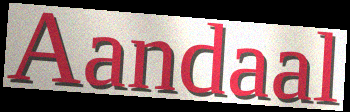
Aandaal